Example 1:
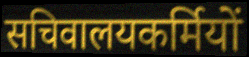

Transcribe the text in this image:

सचिवालयकर्मियों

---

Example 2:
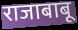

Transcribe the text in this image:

राजाबाबू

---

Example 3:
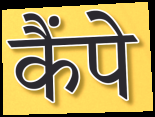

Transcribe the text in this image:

कैंपे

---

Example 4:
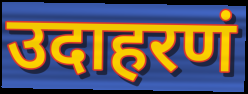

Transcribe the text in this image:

उदाहरणं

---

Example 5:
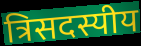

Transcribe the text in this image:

त्रिसदस्यीय